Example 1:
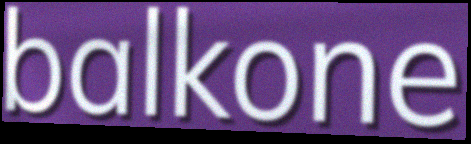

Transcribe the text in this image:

balkone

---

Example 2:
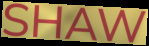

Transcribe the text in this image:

SHAW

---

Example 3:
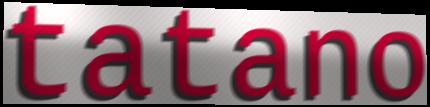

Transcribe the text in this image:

tatano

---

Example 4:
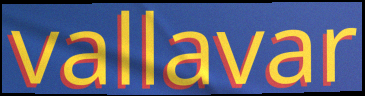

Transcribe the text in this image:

vallavar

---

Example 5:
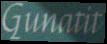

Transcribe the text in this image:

Gunatit